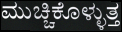
ಮುಚ್ಚಿಕೊಳ್ಳುತ್ತ